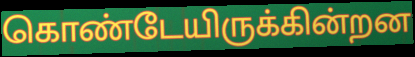
கொண்டேயிருக்கின்றன